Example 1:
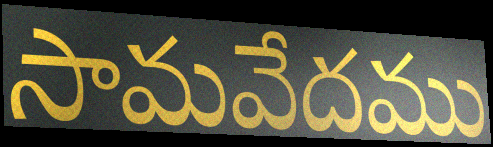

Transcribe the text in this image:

సామవేదము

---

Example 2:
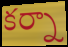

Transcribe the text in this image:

కర్నా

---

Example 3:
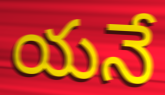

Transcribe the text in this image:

యనే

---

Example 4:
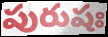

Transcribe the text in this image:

పురుషః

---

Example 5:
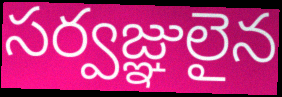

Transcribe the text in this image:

సర్వజ్ఞులైన